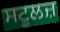
ਸਟੂਲਜ਼